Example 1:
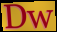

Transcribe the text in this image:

Dw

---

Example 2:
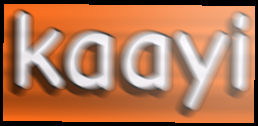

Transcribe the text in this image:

kaayi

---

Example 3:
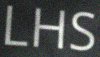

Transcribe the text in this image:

LHS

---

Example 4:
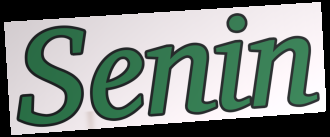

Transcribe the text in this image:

Senin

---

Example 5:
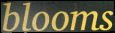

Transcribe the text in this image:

blooms